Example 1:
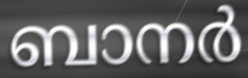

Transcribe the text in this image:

ബാനർ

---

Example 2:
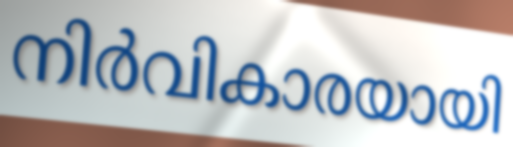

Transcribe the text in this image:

നിർവികാരയായി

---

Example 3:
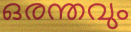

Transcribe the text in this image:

ഒരന്തവും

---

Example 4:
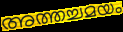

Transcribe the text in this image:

അത്തച്ചമയം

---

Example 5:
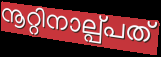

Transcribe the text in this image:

നൂറ്റിനാല്പ്പത്